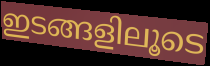
ഇടങ്ങളിലൂടെ